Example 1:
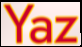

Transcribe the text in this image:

Yaz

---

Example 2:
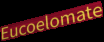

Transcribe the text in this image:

Eucoelomate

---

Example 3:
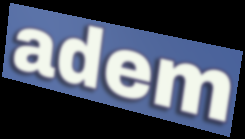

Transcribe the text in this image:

adem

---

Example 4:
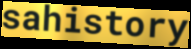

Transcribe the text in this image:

sahistory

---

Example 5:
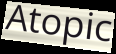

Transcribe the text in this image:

Atopic